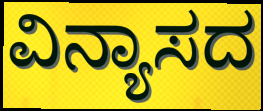
ವಿನ್ಯಾಸದ